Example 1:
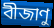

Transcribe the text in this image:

বীজাণু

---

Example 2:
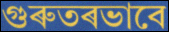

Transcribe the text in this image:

গুৰুতৰভাবে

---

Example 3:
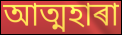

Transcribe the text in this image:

আত্মহাৰা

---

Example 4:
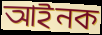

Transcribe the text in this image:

আইনক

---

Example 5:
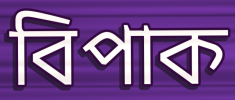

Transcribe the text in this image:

বিপাক